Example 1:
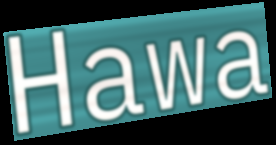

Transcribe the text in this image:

Hawa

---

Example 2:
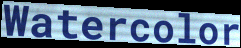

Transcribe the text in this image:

Watercolor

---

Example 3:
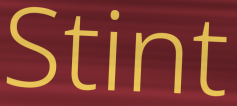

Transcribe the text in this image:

Stint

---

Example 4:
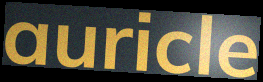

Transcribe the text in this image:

auricle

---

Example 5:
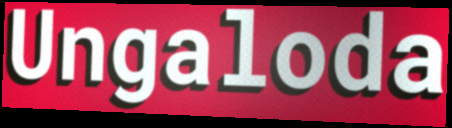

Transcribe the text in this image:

Ungaloda